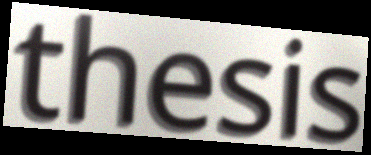
thesis